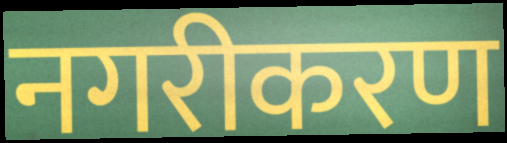
नगरीकरण